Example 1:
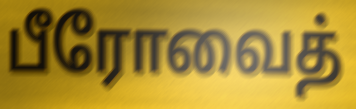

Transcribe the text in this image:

பீரோவைத்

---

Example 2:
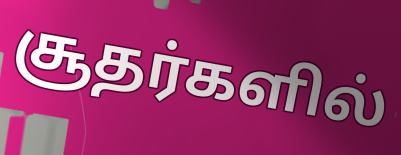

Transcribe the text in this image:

சூதர்களில்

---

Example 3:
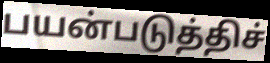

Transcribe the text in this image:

பயன்படுத்திச்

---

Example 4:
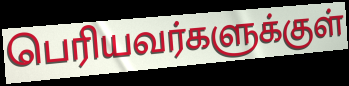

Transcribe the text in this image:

பெரியவர்களுக்குள்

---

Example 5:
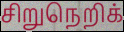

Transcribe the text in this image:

சிறுநெறிக்